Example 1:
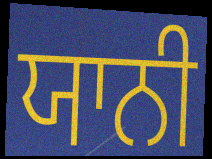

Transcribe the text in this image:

ਯਾਨੀ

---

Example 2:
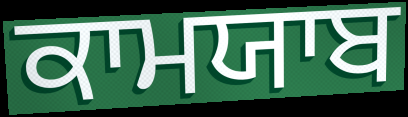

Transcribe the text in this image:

ਕਾਮਯਾਬ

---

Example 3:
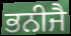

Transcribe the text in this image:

ਭਨੀਜੈ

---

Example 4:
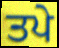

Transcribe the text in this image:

ਤਪੇ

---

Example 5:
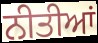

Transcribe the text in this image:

ਨੀਤੀਆਂ